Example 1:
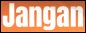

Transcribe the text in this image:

Jangan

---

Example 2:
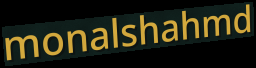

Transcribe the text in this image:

monalshahmd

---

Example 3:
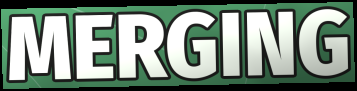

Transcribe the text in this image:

MERGING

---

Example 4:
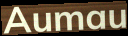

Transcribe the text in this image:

Aumau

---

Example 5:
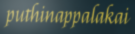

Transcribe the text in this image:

puthinappalakai